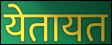
येतायत